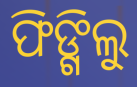
ଫିଙ୍ଗିଲୁ